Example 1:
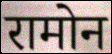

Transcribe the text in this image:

रामोन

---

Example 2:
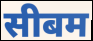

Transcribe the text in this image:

सीबम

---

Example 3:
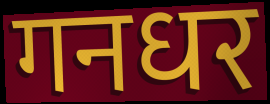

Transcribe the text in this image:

गनधर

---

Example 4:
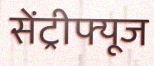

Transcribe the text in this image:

सेंट्रीफ्यूज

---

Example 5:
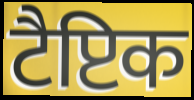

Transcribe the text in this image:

टैप्टिक